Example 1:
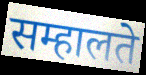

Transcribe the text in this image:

सम्हालते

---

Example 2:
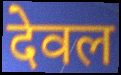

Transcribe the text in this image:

देवल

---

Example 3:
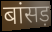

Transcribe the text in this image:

बांसड़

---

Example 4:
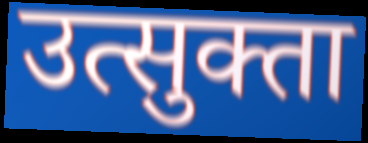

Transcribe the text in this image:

उत्सुक्ता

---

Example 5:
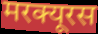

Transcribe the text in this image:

मरक्यूरस